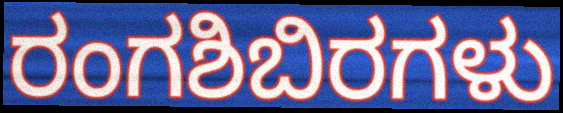
ರಂಗಶಿಬಿರಗಳು